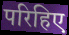
परिहिए